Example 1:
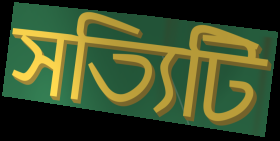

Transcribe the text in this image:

সত্যিটি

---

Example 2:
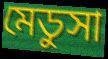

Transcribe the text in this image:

মেডুসা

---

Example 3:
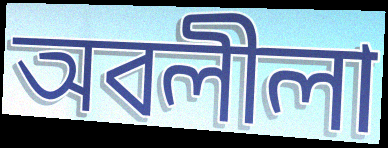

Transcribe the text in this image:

অবলীলা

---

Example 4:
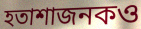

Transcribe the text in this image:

হতাশাজনকও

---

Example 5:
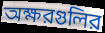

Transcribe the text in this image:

অক্ষরগুলির